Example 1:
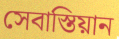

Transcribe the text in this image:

সেবাস্তিয়ান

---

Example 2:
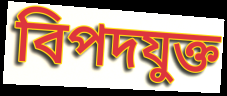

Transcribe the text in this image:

বিপদযুক্ত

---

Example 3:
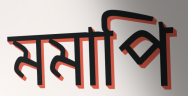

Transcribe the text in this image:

মমাপি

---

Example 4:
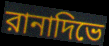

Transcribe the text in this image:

রানাদিভে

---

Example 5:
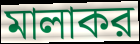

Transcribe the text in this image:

মালাকর